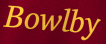
Bowlby